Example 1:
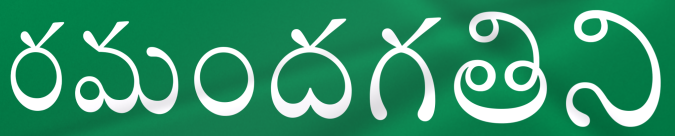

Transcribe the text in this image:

రమందగతిని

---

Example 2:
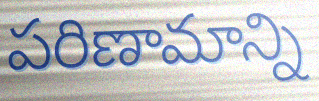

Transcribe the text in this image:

పరిణామాన్ని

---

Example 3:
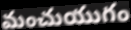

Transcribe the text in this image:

మంచుయుగం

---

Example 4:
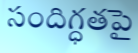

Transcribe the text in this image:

సందిగ్ధతపై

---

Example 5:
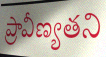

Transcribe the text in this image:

ప్రావీణ్యతని